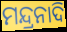
ମନ୍ଦ୍ରନାଦି